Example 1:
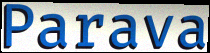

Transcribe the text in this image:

Parava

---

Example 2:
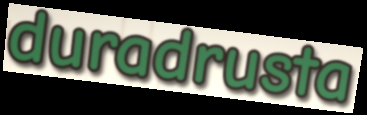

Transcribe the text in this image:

duradrusta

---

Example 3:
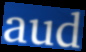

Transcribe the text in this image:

aud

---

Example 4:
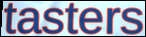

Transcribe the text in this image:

tasters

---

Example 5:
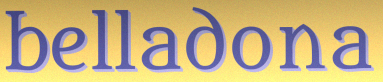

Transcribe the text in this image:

belladona